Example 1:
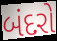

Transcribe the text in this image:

બંદરો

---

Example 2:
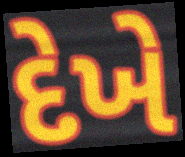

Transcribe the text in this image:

દેખે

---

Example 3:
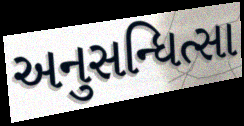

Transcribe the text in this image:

અનુસન્ધિત્સા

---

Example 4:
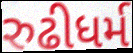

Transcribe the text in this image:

રુઢીધર્મ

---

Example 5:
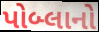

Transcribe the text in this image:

પોબ્લાનો